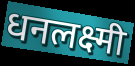
धनलक्ष्मी